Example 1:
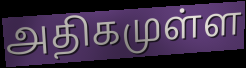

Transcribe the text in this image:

அதிகமுள்ள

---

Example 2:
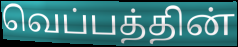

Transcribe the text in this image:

வெப்பத்தின்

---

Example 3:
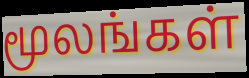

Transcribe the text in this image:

மூலங்கள்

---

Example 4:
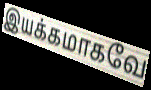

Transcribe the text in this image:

இயக்கமாகவே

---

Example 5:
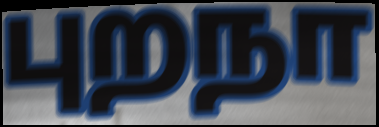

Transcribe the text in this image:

புறநா